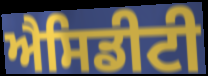
ਐਸਿਡੀਟੀ